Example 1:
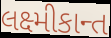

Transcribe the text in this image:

લક્ષ્મીકાન્ત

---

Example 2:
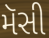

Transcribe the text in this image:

મૅસી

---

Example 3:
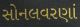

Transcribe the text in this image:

સોનલવરણાં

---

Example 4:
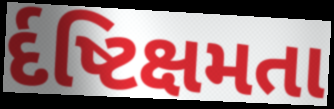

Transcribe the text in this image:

ર્દષ્ટિક્ષમતા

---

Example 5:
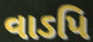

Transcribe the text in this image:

વાઽપિ